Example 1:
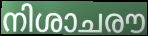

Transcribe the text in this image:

നിശാചരൗ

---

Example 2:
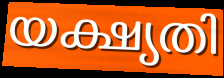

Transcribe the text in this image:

യക്ഷ്യതി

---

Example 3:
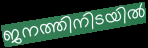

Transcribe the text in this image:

ജനത്തിനിടയിൽ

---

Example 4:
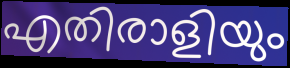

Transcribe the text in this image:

എതിരാളിയും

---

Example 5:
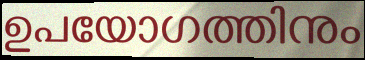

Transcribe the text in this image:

ഉപയോഗത്തിനും